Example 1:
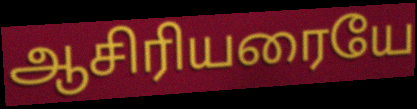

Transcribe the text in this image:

ஆசிரியரையே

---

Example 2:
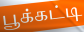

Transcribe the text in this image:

பூக்கட்டி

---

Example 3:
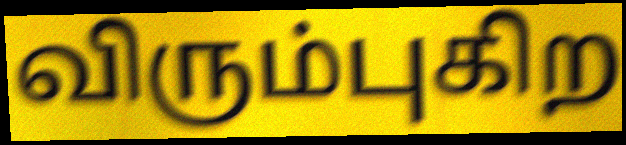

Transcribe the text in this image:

விரும்புகிற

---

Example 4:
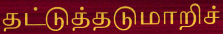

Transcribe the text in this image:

தட்டுத்தடுமாறிச்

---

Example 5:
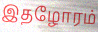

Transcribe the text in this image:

இதழோரம்